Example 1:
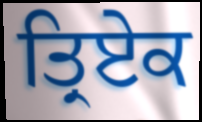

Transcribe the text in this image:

ਤ੍ਰਿਏਕ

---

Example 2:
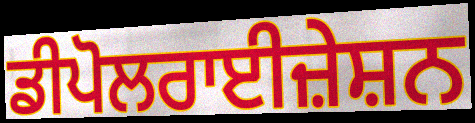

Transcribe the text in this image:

ਡੀਪੋਲਰਾਈਜ਼ੇਸ਼ਨ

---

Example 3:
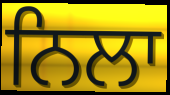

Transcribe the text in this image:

ਨਿਲਾ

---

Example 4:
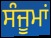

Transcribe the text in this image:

ਸੰਜੂਮਾਂ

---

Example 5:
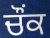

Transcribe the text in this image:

ਚੌਂਕ